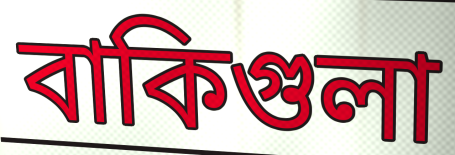
বাকিগুলা